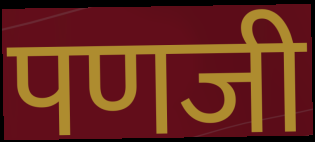
पणजी